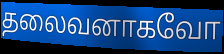
தலைவனாகவோ